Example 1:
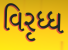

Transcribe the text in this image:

વિરૃધ્ધ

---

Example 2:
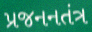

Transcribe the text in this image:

પ્રજનનતંત્ર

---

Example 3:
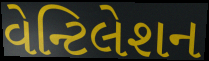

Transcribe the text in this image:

વેન્ટિલેશન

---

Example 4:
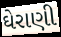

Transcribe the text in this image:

ઘેરાણી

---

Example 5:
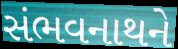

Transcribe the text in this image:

સંભવનાથને